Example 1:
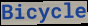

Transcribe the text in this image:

Bicycle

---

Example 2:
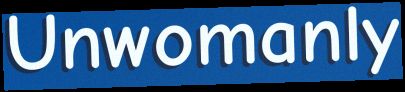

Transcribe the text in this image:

Unwomanly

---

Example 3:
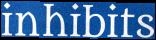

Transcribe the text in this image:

inhibits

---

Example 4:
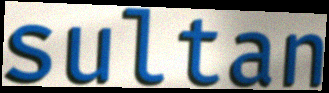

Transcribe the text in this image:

sultan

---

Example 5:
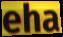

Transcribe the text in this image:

eha